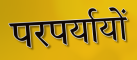
परपर्यायों